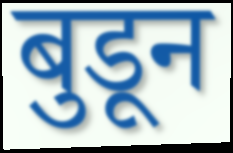
बुडून